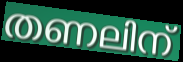
തണലിന്